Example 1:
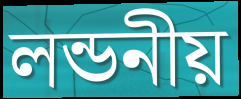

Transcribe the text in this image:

লন্ডনীয়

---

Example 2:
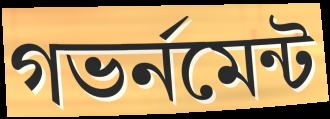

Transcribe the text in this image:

গভর্নমেন্ট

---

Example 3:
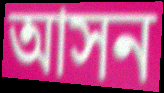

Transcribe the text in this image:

আসন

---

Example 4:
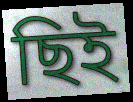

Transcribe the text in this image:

ছিই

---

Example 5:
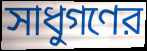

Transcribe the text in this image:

সাধুগণের